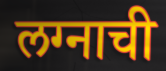
लग्नाची